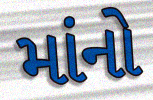
માંનો